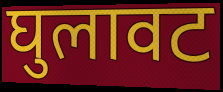
घुलावट